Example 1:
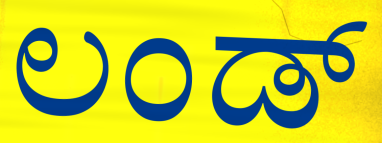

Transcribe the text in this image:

ಲಂಡ್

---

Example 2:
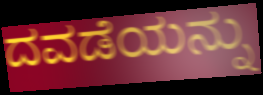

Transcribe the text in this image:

ದವಡೆಯನ್ನು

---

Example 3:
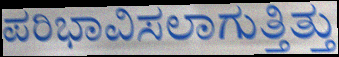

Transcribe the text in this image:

ಪರಿಭಾವಿಸಲಾಗುತ್ತಿತ್ತು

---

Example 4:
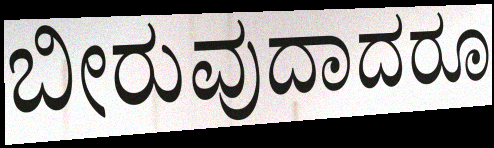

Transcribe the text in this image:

ಬೀರುವುದಾದರೂ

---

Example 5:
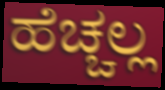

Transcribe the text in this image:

ಹೆಚ್ಚಲ್ಲ